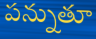
పన్నుతూ